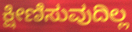
ಕ್ಷೀಣಿಸುವುದಿಲ್ಲ